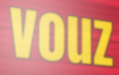
vouz